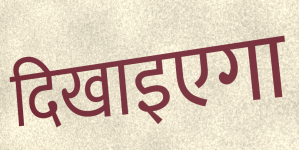
दिखाइएगा